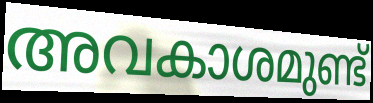
അവകാശമുണ്ട്